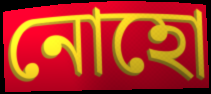
নোহো